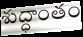
శుద్ధాంతం